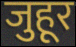
जुहूर